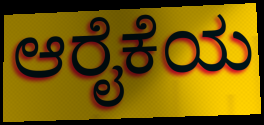
ಆರೈಕೆಯ